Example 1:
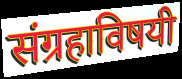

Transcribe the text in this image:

संग्रहाविषयी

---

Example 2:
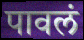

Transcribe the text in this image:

पावलं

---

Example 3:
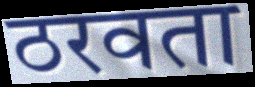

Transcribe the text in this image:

ठरवता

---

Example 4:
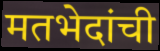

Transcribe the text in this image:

मतभेदांची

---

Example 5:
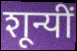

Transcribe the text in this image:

शून्यीं